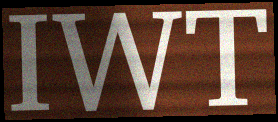
IWT